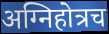
अग्निहोत्रच